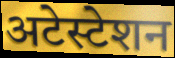
अटेस्टेशन